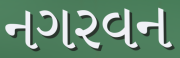
નગરવન